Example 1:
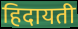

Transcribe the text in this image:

हिदायती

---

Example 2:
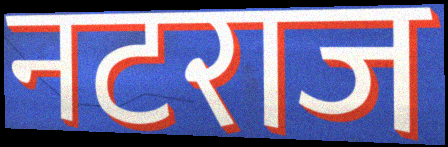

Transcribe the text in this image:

नटराज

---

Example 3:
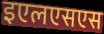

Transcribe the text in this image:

इएलएसएस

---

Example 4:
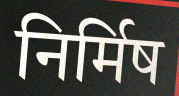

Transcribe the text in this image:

निर्मिष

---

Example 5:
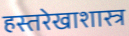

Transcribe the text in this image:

हस्तरेखाशास्त्र